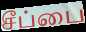
சீப்பை